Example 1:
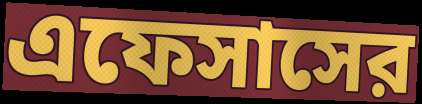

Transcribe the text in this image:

এফেসাসের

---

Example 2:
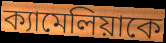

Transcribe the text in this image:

ক্যামেলিয়াকে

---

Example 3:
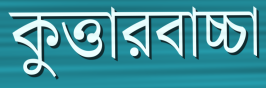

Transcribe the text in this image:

কুত্তারবাচ্চা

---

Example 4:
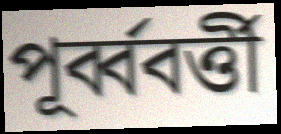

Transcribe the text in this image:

পূর্ব্ববর্ত্তী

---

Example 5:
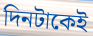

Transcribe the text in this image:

দিনটাকেই